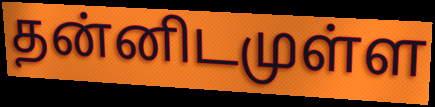
தன்னிடமுள்ள